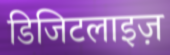
डिजिटलाइज़